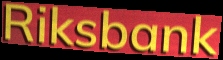
Riksbank